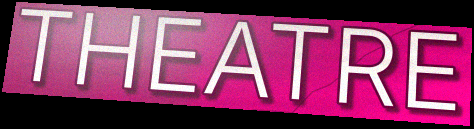
THEATRE